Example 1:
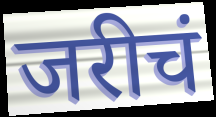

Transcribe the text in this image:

जरीचं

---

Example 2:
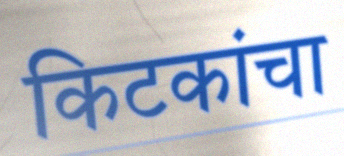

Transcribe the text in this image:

किटकांचा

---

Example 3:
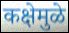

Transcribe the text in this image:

कक्षेमुळे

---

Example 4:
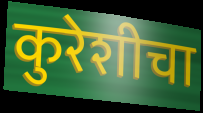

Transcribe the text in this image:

कुरेशीचा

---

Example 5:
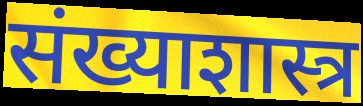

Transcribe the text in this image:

संख्याशास्त्र